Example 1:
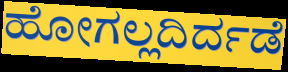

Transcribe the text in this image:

ಹೋಗಲ್ಲದಿರ್ದಡೆ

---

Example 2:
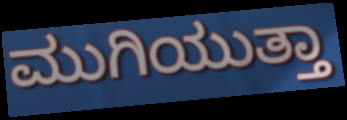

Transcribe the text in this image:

ಮುಗಿಯುತ್ತಾ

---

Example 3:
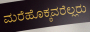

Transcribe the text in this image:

ಮರೆಹೊಕ್ಕವರೆಲ್ಲರು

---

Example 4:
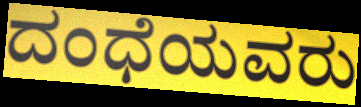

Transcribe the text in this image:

ದಂಧೆಯವರು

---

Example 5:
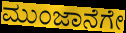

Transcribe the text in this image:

ಮುಂಜಾನೆಗೇ